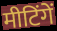
मीटिंगें